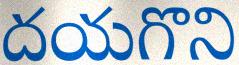
దయగొని